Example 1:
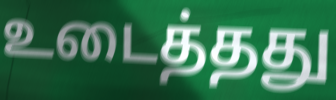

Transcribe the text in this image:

உடைத்தது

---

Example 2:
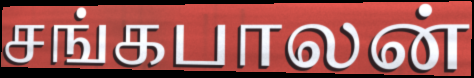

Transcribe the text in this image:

சங்கபாலன்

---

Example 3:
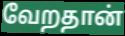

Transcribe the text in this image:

வேறதான்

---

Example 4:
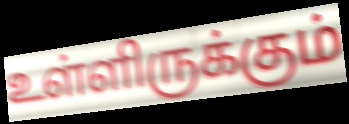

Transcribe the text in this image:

உள்ளிருக்கும்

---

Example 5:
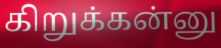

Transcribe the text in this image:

கிறுக்கன்னு